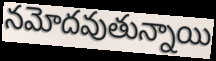
నమోదవుతున్నాయి